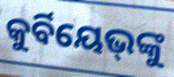
କୁର୍ବିୟେଭ୍‌ଙ୍କୁ